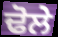
ਢੋਲੇ